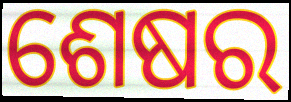
ଶେଷର